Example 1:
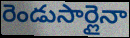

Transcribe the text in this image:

రెండుసార్లైనా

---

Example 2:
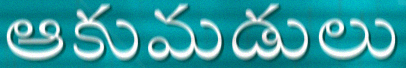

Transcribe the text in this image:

ఆకుమడులు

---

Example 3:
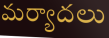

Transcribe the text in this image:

మర్యాదలు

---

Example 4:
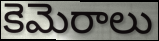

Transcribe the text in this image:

కెమెరాలు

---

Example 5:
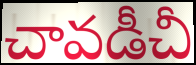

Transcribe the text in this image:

చావడీచీ